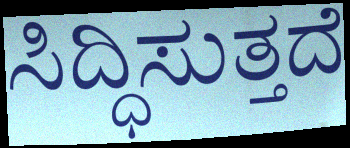
ಸಿದ್ಧಿಸುತ್ತದೆ